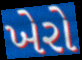
ખેરો